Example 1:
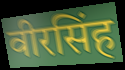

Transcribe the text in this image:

वीरसिंह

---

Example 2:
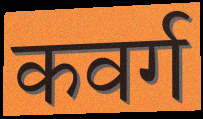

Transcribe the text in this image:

कवर्ग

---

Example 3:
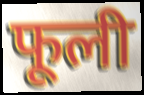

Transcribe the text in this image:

फूली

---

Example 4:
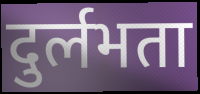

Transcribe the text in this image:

दुर्लभता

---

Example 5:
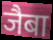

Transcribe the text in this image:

जैबा